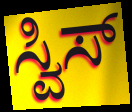
ಸ್ವಿಸ್